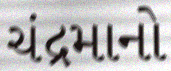
ચંદ્રમાનો